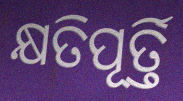
କ୍ଷତିପୂର୍ତ୍ତି